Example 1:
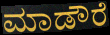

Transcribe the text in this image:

ಮಾಡೌರೆ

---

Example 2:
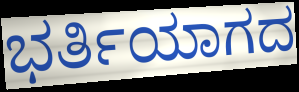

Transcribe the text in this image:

ಭರ್ತಿಯಾಗದ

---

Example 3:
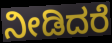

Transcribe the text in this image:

ನೀಡಿದರೆ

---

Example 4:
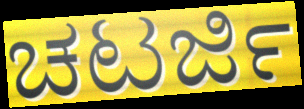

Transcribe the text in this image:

ಚಟರ್ಜಿ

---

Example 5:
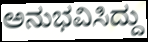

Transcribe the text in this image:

ಅನುಭವಿಸಿದ್ದು